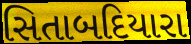
સિતાબદિયારા